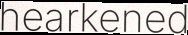
hearkened